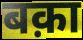
बक़ा